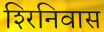
श्रिनिवास